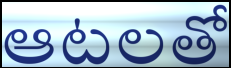
ఆటలతో